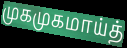
முகமுகமாய்த்